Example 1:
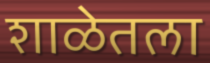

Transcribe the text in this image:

शाळेतला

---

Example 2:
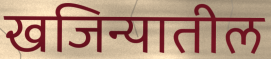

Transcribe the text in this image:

खजिन्यातील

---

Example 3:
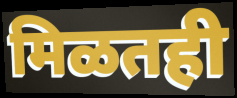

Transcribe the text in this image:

मिळतही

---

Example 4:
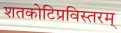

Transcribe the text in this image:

शतकोटिप्रविस्तरम्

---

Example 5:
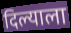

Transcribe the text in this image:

दिल्याला